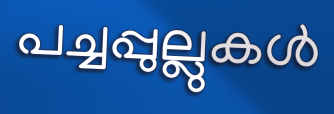
പച്ചപ്പുല്ലുകൾ